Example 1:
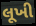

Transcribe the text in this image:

લૂખી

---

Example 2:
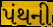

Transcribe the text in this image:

પંથની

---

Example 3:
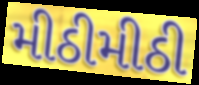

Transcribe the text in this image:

મીઠીમીઠી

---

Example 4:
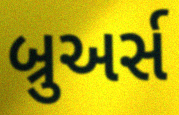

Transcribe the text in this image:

બ્રુઅર્સ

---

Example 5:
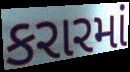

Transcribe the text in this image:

કરારમાં